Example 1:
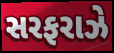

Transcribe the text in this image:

સરફરાઝે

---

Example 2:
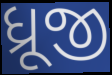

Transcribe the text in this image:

ધ્રૂજી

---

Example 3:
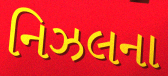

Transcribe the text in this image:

નિઝલના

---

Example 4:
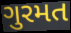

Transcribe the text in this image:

ગુરમત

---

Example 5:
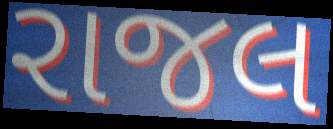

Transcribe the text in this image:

રાજલ